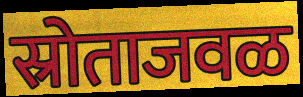
स्रोताजवळ